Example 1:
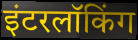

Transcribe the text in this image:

इंटरलॉकिंग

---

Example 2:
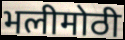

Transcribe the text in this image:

भलीमोठी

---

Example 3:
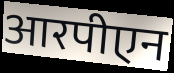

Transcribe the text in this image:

आरपीएन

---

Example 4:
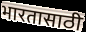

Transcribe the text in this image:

भारतासाठी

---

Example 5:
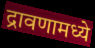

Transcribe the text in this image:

द्रावणामध्ये